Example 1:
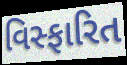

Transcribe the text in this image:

વિસ્ફારિત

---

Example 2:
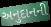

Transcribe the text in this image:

અનુદાનની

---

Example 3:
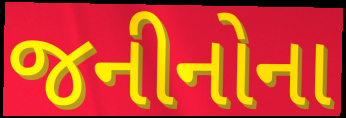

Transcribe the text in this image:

જનીનોના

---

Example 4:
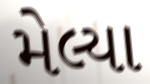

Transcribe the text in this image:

મેલ્યા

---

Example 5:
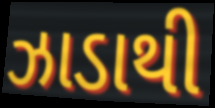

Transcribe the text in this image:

ઝાડાથી